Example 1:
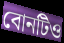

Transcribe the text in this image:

বোনটিও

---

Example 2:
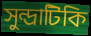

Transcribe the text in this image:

সুন্দ্রাটিকি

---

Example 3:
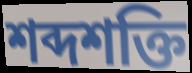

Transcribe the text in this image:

শব্দশক্তি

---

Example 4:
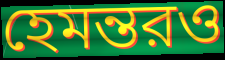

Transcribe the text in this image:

হেমন্তরও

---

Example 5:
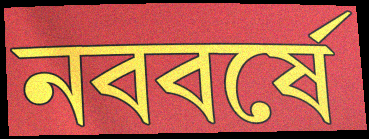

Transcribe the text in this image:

নববর্ষে